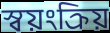
স্বয়ংক্রিয়